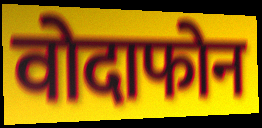
वोदाफोन